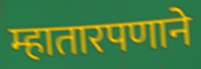
म्हातारपणाने